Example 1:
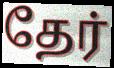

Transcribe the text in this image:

தேர்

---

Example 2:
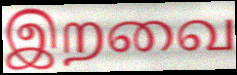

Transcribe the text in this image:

இறவை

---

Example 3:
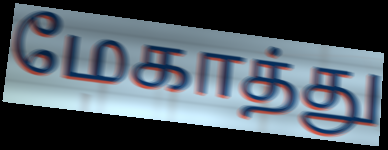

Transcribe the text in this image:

மேகாத்து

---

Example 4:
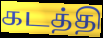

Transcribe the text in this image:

கடத்தி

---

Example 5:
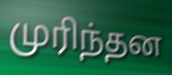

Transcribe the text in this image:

முரிந்தன